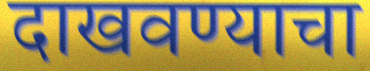
दाखवण्याचा